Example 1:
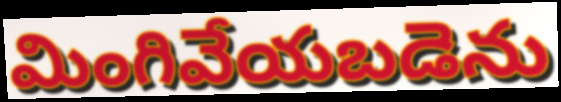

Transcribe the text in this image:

మింగివేయబడెను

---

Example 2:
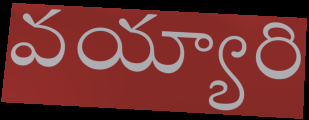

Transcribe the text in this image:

వయ్యారి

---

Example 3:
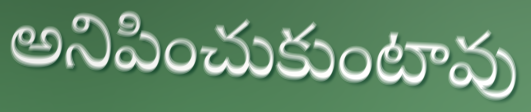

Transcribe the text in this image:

అనిపించుకుంటావు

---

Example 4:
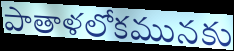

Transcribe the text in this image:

పాతాళలోకమునకు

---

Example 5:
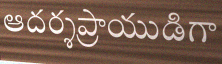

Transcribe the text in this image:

ఆదర్శప్రాయుడిగా